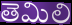
తెమిలి